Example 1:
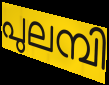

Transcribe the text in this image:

പുലമ്പി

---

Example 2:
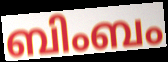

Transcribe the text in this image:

ബിംബം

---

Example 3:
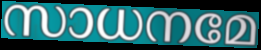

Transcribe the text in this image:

സാധനമേ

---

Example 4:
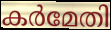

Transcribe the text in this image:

കർമേതി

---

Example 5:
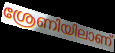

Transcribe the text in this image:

ശ്രേണിയിലാണ്